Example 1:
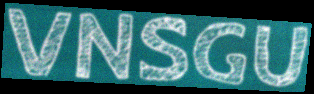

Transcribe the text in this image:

VNSGU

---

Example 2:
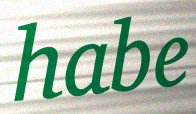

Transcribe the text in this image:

habe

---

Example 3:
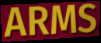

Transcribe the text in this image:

ARMS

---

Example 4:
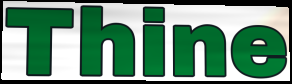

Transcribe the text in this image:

Thine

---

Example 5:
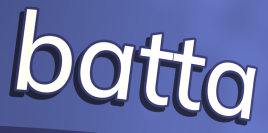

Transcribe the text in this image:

batta